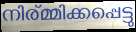
നിര്മ്മിക്കപ്പെട്ടു